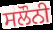
ਸਲੌਨੀ